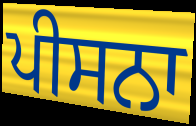
ਪੀਸਨਾ